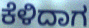
ಕೆಳಿದಾಗ